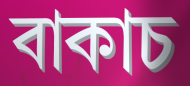
বাকাচ